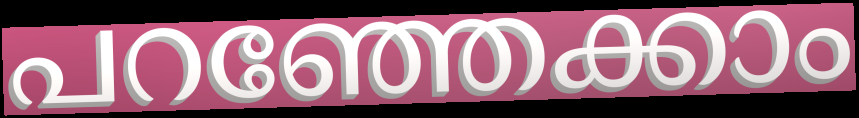
പറഞ്ഞേക്കാം